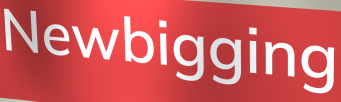
Newbigging